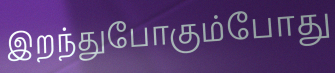
இறந்துபோகும்போது